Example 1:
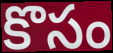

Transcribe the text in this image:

కొసం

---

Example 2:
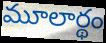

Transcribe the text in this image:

మూలార్థం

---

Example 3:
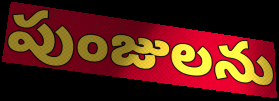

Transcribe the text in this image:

పుంజులను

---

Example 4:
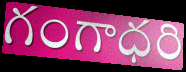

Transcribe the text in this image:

గంగాధరి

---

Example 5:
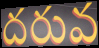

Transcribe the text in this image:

దరువ